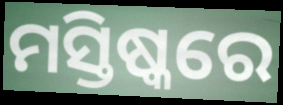
ମସ୍ତିଷ୍କରେ